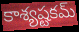
కాశ్యష్టకమ్